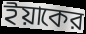
ইয়াকের